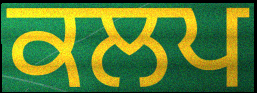
ਕਲਪ